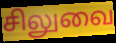
சிலுவை